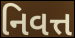
નિવત્ત